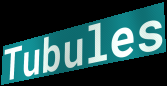
Tubules